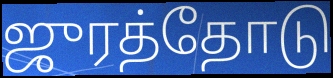
ஜுரத்தோடு